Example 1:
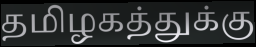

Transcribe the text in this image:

தமிழகத்துக்கு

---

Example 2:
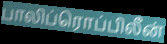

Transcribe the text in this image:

பாலிப்ரொப்பிலீன்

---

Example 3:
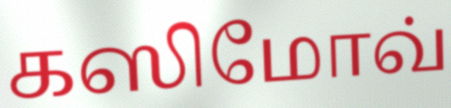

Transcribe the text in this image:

கஸிமோவ்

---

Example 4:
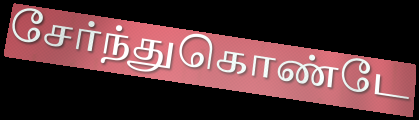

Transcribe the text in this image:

சேர்ந்துகொண்டே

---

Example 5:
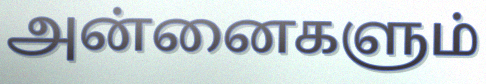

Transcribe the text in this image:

அன்னைகளும்